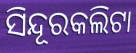
ସିନ୍ଦୂରକଲିଟା